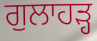
ਗੁਲਾਹੜ੍ਹ